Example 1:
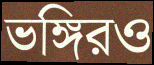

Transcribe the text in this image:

ভঙ্গিরও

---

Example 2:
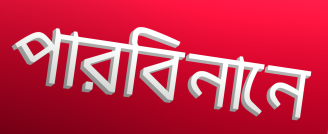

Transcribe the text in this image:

পারবিনানে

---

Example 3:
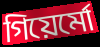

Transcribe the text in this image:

গিয়ের্মো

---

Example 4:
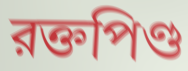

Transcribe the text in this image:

রক্তপিণ্ড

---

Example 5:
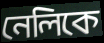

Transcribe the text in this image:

নেলিকে